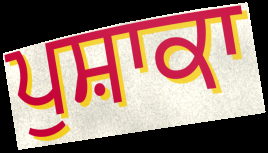
ਪੁਸ਼ਾਕਾ